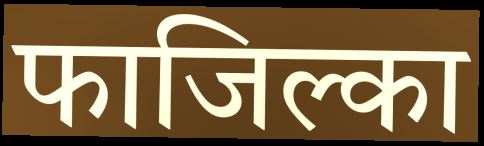
फाजिल्का